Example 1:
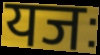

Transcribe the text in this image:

यजः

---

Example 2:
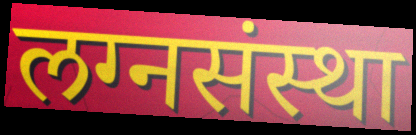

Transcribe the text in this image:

लग्नसंस्था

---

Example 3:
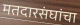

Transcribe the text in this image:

मतदारसंघांचा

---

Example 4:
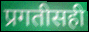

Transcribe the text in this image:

प्रगतीसही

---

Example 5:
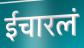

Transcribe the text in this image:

ईचारलं